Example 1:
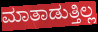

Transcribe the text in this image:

ಮಾತಾಡುತ್ತಿಲ್ಲ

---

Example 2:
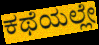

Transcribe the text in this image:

ಕಥೆಯಲ್ಲೇ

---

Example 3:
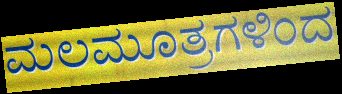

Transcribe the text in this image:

ಮಲಮೂತ್ರಗಳಿಂದ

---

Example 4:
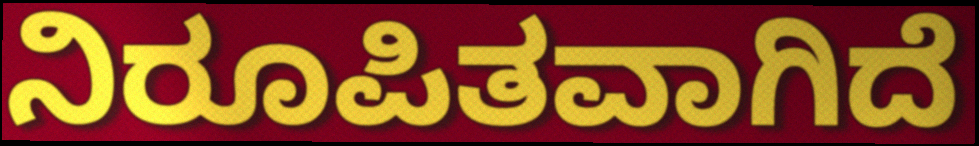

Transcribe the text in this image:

ನಿರೂಪಿತವಾಗಿದೆ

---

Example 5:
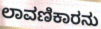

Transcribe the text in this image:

ಲಾವಣಿಕಾರನು